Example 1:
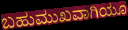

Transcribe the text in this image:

ಬಹುಮುಖವಾಗಿಯೂ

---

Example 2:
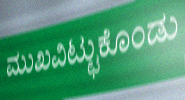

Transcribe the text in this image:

ಮುಖವಿಟ್ಟುಕೊಂಡು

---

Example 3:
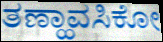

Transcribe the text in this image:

ತಣ್ಹಾವಸಿಕೋ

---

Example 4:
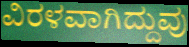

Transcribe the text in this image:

ವಿರಳವಾಗಿದ್ದುವು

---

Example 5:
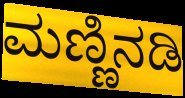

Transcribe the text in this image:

ಮಣ್ಣಿನಡಿ